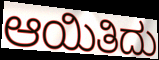
ಆಯಿತಿದು